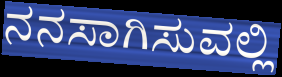
ನನಸಾಗಿಸುವಲ್ಲಿ